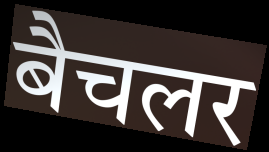
बैचलर